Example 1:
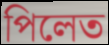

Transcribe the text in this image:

পিলেত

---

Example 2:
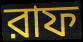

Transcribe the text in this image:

রাফ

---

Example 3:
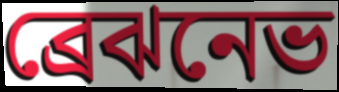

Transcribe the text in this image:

ব্রেঝনেভ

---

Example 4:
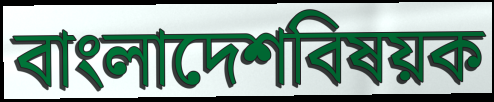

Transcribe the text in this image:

বাংলাদেশবিষয়ক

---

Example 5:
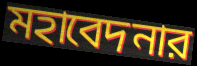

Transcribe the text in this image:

মহাবেদনার